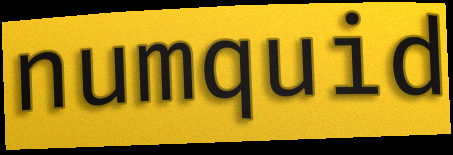
numquid